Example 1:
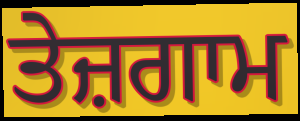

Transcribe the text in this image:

ਤੇਜ਼ਗਾਮ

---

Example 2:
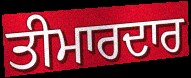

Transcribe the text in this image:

ਤੀਮਾਰਦਾਰ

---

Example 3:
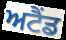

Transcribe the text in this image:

ਅਟੈਂਡ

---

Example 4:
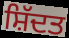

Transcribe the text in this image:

ਸ਼ਿੱਦਤ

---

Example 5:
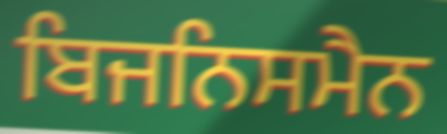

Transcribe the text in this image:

ਬਿਜਨਿਸਮੈਨ